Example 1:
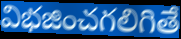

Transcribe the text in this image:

విభజించగలిగితే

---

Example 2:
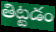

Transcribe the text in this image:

తిట్టడం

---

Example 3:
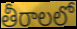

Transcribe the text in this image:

తీరాలలో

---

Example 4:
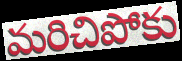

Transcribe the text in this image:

మరిచిపోకు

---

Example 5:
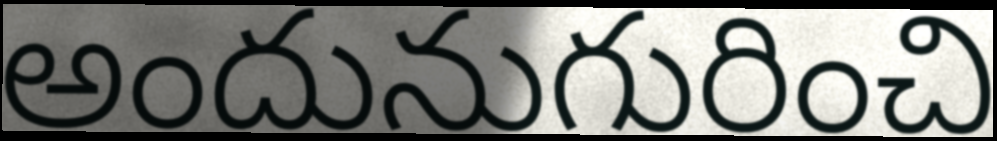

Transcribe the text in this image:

అందునుగురించి